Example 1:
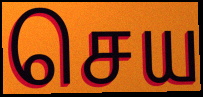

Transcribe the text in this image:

செய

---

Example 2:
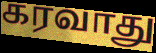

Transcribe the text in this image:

கரவாது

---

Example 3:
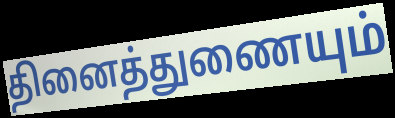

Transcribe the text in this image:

தினைத்துணையும்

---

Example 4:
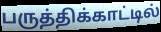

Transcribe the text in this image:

பருத்திக்காட்டில்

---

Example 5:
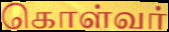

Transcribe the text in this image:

கொள்வர்